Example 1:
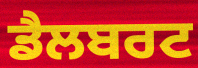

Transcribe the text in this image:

ਡੈਲਬਰਟ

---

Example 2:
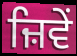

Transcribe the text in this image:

ਜ਼ਿਵੇਂ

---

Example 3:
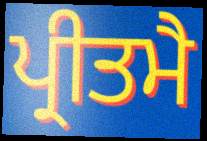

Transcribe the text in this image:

ਪ੍ਰੀਤਮੈ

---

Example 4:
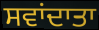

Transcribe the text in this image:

ਸਵਾਂਦਾਤਾ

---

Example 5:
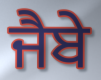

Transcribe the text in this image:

ਜੈਬੇ